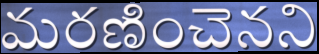
మరణించెనని